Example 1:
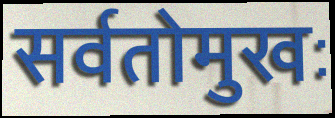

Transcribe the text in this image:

सर्वतोमुखः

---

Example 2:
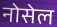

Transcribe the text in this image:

नोसेल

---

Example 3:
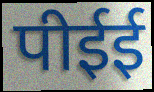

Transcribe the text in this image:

पीईई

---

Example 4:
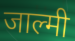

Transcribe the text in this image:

जाल्मी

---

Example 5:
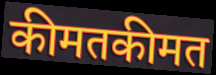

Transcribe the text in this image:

कीमतकीमत